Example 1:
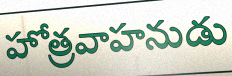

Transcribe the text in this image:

హోత్రవాహనుడు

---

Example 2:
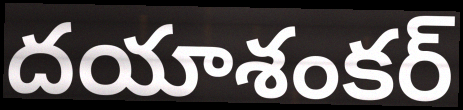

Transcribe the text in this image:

దయాశంకర్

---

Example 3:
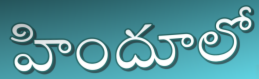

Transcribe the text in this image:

హిందూలో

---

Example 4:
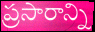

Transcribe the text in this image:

ప్రసారాన్ని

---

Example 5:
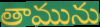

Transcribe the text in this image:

తామును